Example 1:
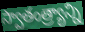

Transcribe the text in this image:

స్వాతంత్ర్యాన్ని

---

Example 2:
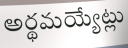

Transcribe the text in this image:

అర్థమయ్యేట్లు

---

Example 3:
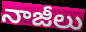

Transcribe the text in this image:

నాజీలు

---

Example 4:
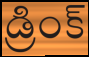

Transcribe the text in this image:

డ్రింక్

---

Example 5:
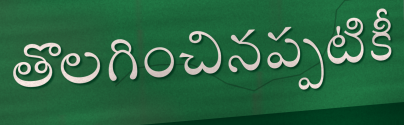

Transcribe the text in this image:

తొలగించినప్పటికీ